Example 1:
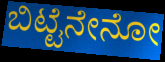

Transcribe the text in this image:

ಬಿಟ್ಟೆನೇನೋ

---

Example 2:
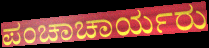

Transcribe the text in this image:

ಪಂಚಾಚಾರ್ಯರು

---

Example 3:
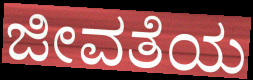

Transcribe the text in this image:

ಜೀವತೆಯ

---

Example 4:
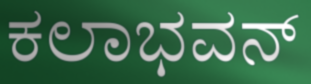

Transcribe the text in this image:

ಕಲಾಭವನ್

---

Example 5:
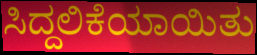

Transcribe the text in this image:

ಸಿದ್ದಲಿಕೆಯಾಯಿತು